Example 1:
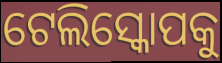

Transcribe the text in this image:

ଟେଲିସ୍କୋପକୁ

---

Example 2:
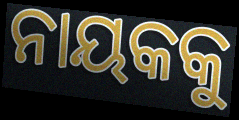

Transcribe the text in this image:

ନାୟକକୁ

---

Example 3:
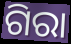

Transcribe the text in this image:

ଗିରା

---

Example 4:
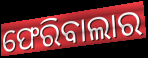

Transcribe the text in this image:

ଫେରିବାଲାର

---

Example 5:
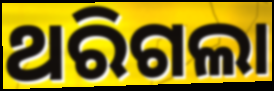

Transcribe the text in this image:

ଥରିଗଲା